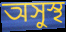
অসুস্থ